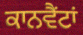
ਕਾਨਵੈਂਟਾਂ